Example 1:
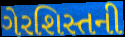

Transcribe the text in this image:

ગેરશિસ્તની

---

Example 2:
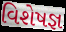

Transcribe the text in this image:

વિશેષજ્ઞ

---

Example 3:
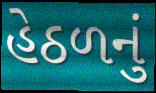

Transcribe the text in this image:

હેઠળનું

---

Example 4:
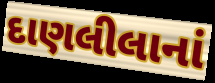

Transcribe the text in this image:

દાણલીલાનાં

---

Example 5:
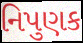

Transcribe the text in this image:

નિપુણક